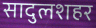
सादुलशहर